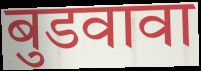
बुडवावा